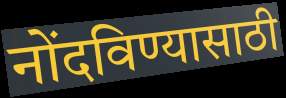
नोंदविण्यासाठी